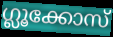
ഗ്ലൂക്കോസ്